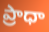
ప్రాధా